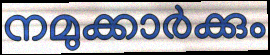
നമുക്കാർക്കും